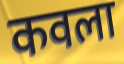
कवला